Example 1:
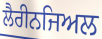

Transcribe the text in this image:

ਲੈਰੀਨਜਿਅਲ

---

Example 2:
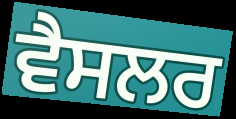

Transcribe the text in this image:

ਵੈਸਲਰ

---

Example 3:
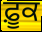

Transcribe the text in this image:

ਫ਼ੂਕ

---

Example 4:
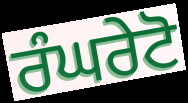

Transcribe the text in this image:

ਰੰਘਰੇਟੋ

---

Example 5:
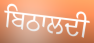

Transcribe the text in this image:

ਬਿਠਾਲਦੀ